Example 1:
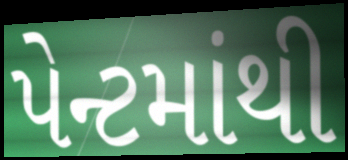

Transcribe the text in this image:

પેન્ટમાંથી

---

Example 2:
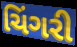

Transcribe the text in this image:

ચિંગરી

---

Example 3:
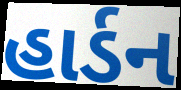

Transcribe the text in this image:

હાર્ડન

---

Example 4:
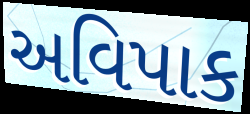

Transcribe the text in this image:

અવિપાક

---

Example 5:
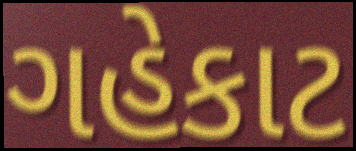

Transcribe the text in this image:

ગહેકાટ